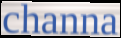
channa